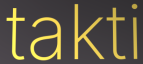
takti